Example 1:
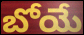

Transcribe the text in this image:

బోయే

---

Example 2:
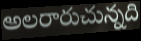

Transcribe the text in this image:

అలరారుచున్నది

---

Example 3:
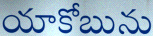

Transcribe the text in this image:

యాకోబును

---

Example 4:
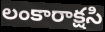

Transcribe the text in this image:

లంకారాక్షసి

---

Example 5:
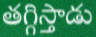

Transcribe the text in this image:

తగ్గిస్తాడు